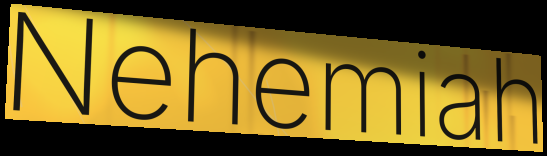
Nehemiah